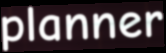
planner